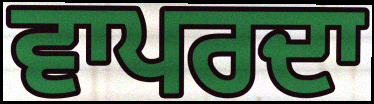
ਵਾਪਰਦਾ